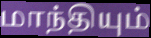
மாந்தியும்